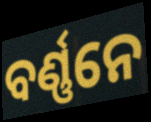
ବର୍ଣ୍ଣନେ